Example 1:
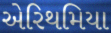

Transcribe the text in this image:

એરિથમિયા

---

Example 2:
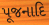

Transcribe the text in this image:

પૂજનાદિ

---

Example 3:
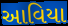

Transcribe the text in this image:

આવિયા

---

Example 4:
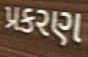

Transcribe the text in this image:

પ્રકરણ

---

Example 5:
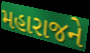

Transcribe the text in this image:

મહારાજને